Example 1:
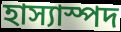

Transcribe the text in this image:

হাস্যাস্পদ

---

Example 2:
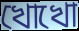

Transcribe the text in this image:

খোখো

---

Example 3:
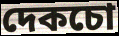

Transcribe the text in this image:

দেকচো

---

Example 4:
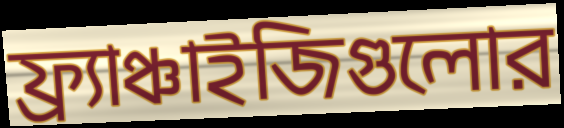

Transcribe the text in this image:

ফ্র্যাঞ্চাইজিগুলোর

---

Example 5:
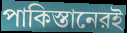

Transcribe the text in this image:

পাকিস্তানেরই